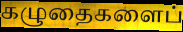
கழுதைகளைப்